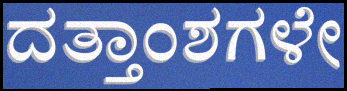
ದತ್ತಾಂಶಗಳೇ